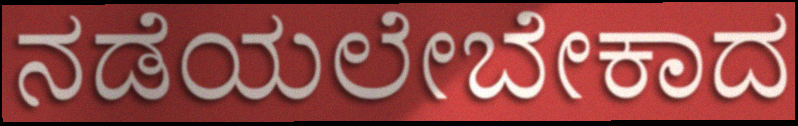
ನಡೆಯಲೇಬೇಕಾದ